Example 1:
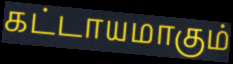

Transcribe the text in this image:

கட்டாயமாகும்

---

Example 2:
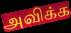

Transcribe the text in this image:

அவிக்க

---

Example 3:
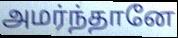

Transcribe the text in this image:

அமர்ந்தானே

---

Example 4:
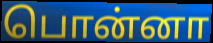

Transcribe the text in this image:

பொன்னா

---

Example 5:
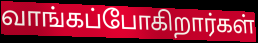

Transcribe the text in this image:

வாங்கப்போகிறார்கள்